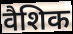
वैशिक